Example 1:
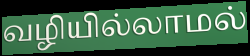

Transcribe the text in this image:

வழியில்லாமல்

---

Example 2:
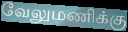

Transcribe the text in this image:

வேலுமணிக்கு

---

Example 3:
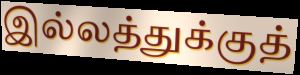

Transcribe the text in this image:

இல்லத்துக்குத்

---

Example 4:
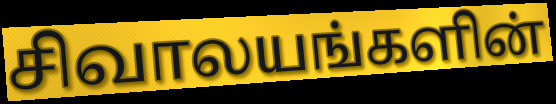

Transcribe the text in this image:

சிவாலயங்களின்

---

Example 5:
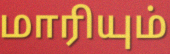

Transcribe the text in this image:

மாரியும்